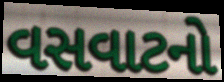
વસવાટનો